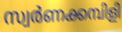
സ്വർണക്കമ്പിളി